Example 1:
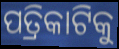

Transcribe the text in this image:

ପତ୍ରିକାଟିକୁ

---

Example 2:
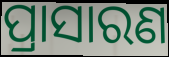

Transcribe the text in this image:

ପ୍ରାସାରଣ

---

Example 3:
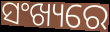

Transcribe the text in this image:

ସଂଖ୍ୟରେ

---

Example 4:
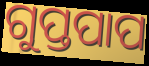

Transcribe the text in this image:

ଗୁପ୍ତପାପ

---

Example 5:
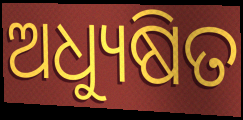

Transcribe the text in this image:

ଅଧ୍ୟୁଷିତ